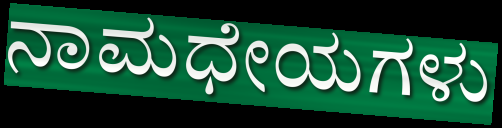
ನಾಮಧೇಯಗಳು